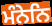
ਮੰਨੇਨਿ